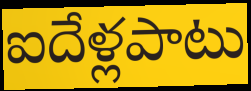
ఐదేళ్లపాటు